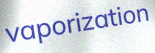
vaporization